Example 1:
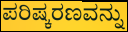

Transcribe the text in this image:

ಪರಿಷ್ಕರಣವನ್ನು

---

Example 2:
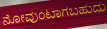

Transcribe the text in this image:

ನೋವುಂಟಾಗಬಹುದು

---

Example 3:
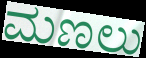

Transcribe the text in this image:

ಮಣಲು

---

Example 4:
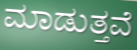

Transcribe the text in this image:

ಮಾಡುತ್ತವೆ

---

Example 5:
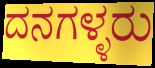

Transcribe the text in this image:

ದನಗಳ್ಳರು